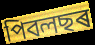
পিবলছৰ